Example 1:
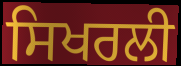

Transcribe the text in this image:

ਸਿਖਰਲੀ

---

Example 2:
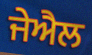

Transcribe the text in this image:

ਜੇਐਲ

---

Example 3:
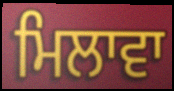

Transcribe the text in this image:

ਮਿਲਾਵਾ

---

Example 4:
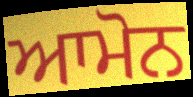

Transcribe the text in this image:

ਆਮੋਨ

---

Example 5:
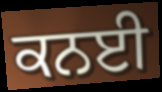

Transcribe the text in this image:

ਕਨਈ